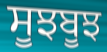
ਸੂਝਬੂਝ